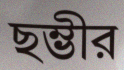
ছম্ভীর